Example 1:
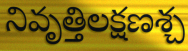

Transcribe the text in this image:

నివృత్తిలక్షణశ్చ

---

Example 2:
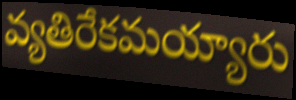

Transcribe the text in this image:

వ్యతిరేకమయ్యారు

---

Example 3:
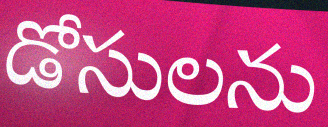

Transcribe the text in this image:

డోసులను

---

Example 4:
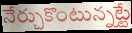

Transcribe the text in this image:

నేర్చుకొంటున్నట్టే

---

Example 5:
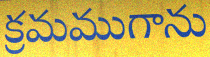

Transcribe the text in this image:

క్రమముగాను